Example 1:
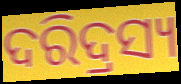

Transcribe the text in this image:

ଦରିଦ୍ରସ୍ୟ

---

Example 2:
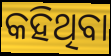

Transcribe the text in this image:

କହିଥିବା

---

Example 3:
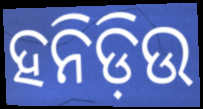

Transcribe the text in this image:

ହନିଡ଼ିଉ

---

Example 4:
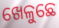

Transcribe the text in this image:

ଖେଳୁଛେ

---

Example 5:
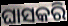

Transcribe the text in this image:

ଘାସକରି